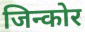
जिन्कोर